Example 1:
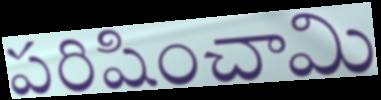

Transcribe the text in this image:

పరిషించామి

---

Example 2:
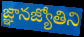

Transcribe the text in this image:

జ్ఞానజ్యోతిని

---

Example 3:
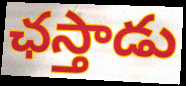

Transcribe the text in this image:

ఛస్తాడు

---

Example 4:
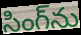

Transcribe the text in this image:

సింగ్‌ను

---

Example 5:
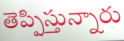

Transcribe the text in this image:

తెప్పిస్తున్నారు